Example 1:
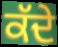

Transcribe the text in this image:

ਕੱਦੇ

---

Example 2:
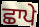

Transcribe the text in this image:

ਛਾਪੇ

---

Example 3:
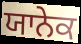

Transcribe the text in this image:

ਯਾਨੇਕ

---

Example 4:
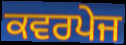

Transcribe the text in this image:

ਕਵਰਪੇਜ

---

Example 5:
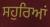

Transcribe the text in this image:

ਸਹੁਰਿਆਂ